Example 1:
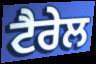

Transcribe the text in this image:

ਟੈਰੇਲ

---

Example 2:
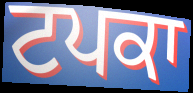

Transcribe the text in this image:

ਟਪਕਾ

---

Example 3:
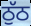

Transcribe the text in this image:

ਠੁੱਠ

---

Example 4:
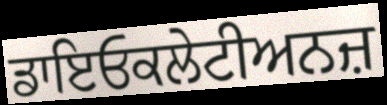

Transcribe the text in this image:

ਡਾਇਓਕਲੇਟੀਅਨਜ਼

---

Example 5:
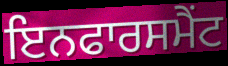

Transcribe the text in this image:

ਇਨਫਾਰਸਮੈਂਟ